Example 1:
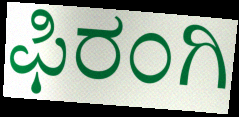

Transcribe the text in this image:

ಫಿರಂಗಿ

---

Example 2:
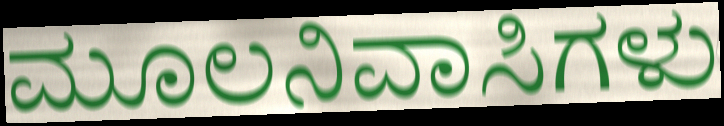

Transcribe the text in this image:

ಮೂಲನಿವಾಸಿಗಳು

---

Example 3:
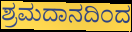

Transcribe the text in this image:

ಶ್ರಮದಾನದಿಂದ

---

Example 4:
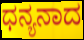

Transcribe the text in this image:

ಧನ್ಯನಾದ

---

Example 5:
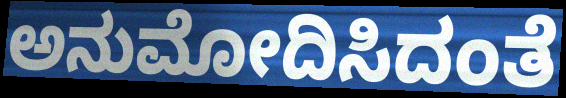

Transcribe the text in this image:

ಅನುಮೋದಿಸಿದಂತೆ